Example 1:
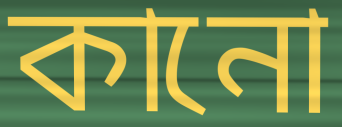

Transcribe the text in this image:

কানো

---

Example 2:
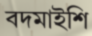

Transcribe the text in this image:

বদমাইশি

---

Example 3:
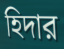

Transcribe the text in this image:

হিদার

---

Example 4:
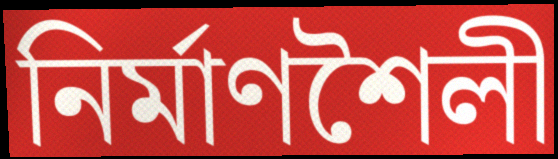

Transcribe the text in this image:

নির্মাণশৈলী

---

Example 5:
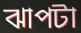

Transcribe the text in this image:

ঝাপটা